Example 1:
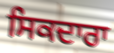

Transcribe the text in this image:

ਸਿਕਦਾਰਾ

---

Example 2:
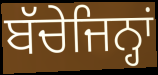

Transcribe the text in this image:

ਬੱਚੇਜਿਨ੍ਹਾਂ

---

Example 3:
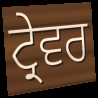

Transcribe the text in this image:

ਟ੍ਰੇਵਰ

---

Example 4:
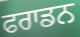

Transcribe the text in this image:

ਫਰਾਡਨ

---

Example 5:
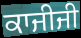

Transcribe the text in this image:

ਕਾਜੀਜੀ